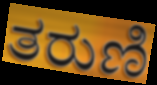
ತರುಣಿ